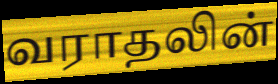
வராதலின்